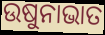
ଉଷୁନାଭାତ